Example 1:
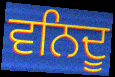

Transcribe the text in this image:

ਵਨਿਦੂ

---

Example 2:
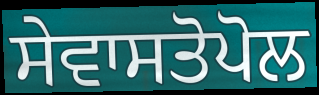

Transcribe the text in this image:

ਸੇਵਾਸਤੋਪੋਲ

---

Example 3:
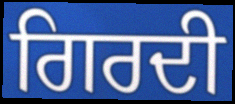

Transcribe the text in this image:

ਗਿਰਦੀ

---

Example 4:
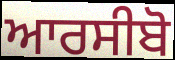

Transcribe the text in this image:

ਆਰਸੀਬੋ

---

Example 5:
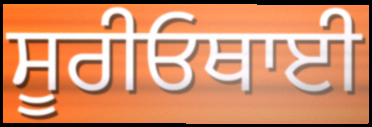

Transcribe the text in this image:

ਸੂਰੀਓਥਾਈ